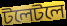
টলেটলে